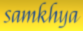
samkhya